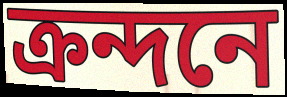
ক্রন্দনে